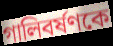
গালিবর্ষণকে